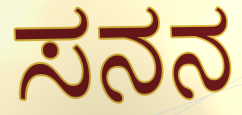
ಸನನ